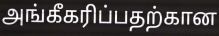
அங்கீகரிப்பதற்கான